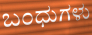
ಬಂಧುಗಳು